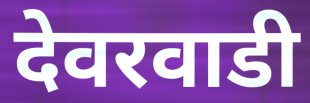
देवरवाडी